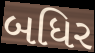
બધિર